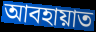
আবহায়াত